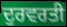
ਦੁਰਵਰਤੀ